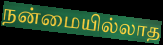
நன்மையில்லாத